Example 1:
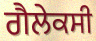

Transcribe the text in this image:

ਗੈਲੇਕਸੀ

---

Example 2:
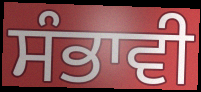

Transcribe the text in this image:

ਸੰਭਾਵੀ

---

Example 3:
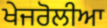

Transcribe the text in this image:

ਖੇਜਰੋਲੀਆ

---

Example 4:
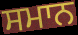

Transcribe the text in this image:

ਸਮਾਨ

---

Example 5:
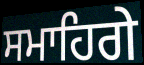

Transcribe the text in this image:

ਸਮਾਹਿਗੇ